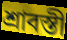
শ্রাবস্তী